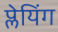
प्लेयिंग